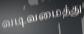
வடிவமைத்து